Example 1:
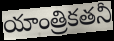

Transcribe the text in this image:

యాంత్రికతనీ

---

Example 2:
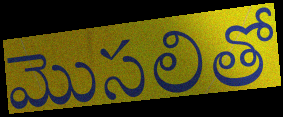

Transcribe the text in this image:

మొసలితో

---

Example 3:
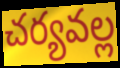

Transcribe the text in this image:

చర్యవల్ల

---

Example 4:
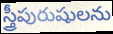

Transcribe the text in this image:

స్త్రీపురుషులను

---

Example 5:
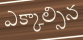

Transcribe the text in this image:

ఎక్కాల్సిన